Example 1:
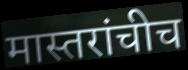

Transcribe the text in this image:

मास्तरांचीच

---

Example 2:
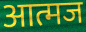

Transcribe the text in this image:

आत्मज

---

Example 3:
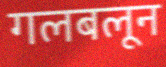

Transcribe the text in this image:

गलबलून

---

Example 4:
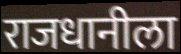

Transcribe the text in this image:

राजधानीला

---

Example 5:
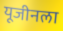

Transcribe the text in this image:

यूजीनला